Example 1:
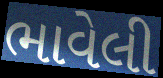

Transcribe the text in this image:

ભાવેલી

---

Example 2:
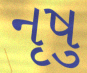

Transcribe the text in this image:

નૃષુ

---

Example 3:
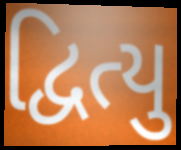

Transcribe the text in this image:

દ્વિત્યુ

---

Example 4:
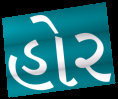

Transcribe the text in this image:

હોર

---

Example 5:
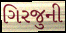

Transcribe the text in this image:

ગિરજુની